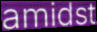
amidst